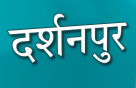
दर्शनपुर